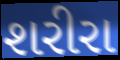
શરીરા